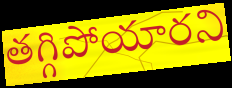
తగ్గిపోయారని